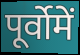
पूर्वोमें